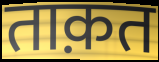
ताक़त